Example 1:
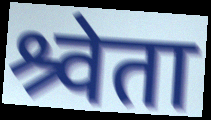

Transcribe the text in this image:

श्र्वेता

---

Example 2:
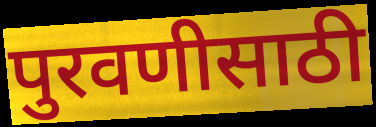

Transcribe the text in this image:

पुरवणीसाठी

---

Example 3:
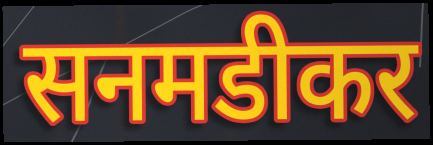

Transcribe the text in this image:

सनमडीकर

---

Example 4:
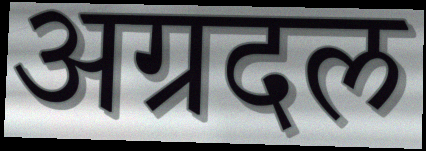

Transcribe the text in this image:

अग्रदल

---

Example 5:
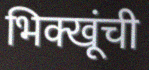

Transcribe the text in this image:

भिक्खूंची